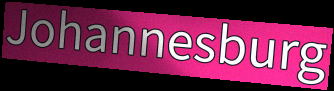
Johannesburg